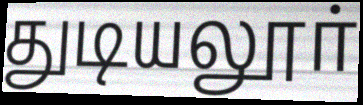
துடியலூர்